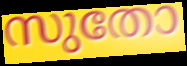
സുതോ